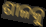
ଶୀଳକୁ